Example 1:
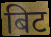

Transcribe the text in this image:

बिट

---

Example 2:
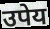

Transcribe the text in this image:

उपेय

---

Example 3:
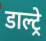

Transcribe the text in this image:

डाल्ट्रे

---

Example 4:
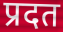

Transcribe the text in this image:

प्रदत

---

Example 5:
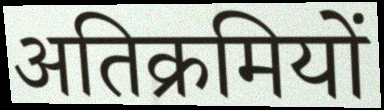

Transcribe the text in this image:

अतिक्रमियों